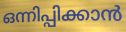
ഒന്നിപ്പിക്കാൻ